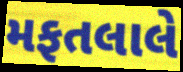
મફતલાલે